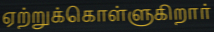
ஏற்றுக்கொள்ளுகிறார்